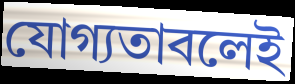
যোগ্যতাবলেই